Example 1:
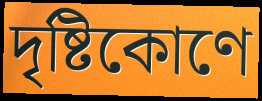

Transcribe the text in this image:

দৃষ্টিকোণে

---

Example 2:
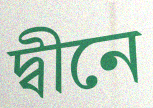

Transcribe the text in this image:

দ্বীনে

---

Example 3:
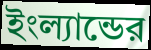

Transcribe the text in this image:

ইংল্য়ান্ডের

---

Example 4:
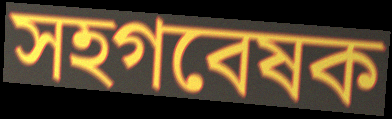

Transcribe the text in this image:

সহগবেষক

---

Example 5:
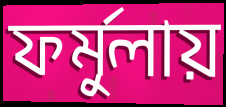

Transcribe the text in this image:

ফর্মুলায়